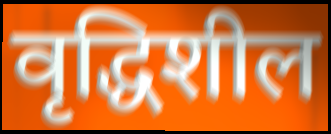
वृद्धिशील